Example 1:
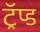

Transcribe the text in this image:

ट्रॅप्ड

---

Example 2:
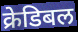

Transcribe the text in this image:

क्रेडिबल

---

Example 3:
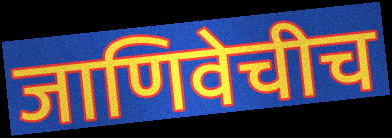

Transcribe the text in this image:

जाणिवेचीच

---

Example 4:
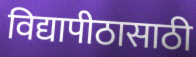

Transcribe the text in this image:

विद्यापीठासाठी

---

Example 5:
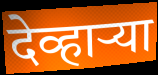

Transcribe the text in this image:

देव्हाऱ्या